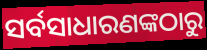
ସର୍ବସାଧାରଣଙ୍କଠାରୁ